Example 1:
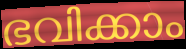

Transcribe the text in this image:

ഭവിക്കാം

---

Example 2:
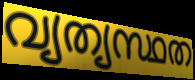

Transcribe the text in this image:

വ്യത്യസ്ഥത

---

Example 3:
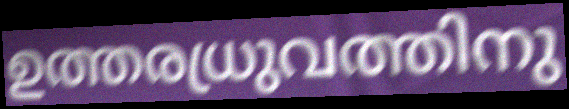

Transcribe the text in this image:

ഉത്തരധ്രുവത്തിനു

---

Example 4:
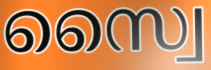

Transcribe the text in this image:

സ്വൈ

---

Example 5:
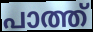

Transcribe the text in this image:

പാത്ത്